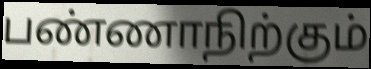
பண்ணாநிற்கும்